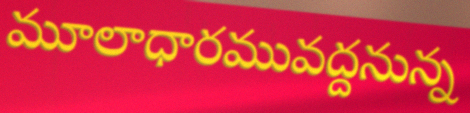
మూలాధారమువద్దనున్న